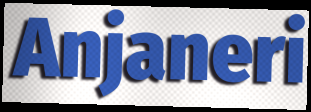
Anjaneri